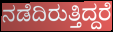
ನಡೆದಿರುತ್ತಿದ್ದರೆ